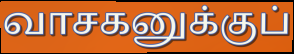
வாசகனுக்குப்